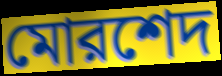
মোরশেদ